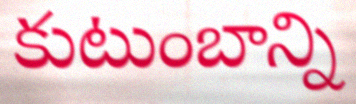
కుటుంబాన్ని